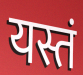
यस्तं